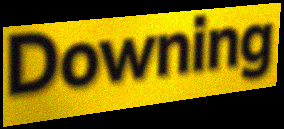
Downing